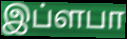
இப்ளபா